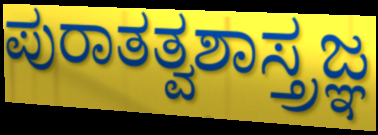
ಪುರಾತತ್ವಶಾಸ್ತ್ರಜ್ಞ